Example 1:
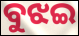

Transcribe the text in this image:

ବୁଝଇ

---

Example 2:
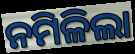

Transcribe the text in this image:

ନମିଳିଲା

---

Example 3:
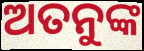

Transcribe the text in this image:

ଅତନୁଙ୍କ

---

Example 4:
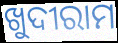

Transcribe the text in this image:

ଖୁଦୀରାମ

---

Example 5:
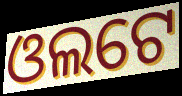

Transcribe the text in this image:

ଓଲଟେ